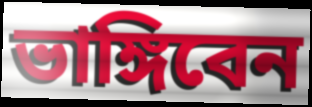
ভাঙ্গিবেন